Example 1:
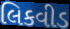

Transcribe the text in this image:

લિકવીડ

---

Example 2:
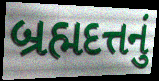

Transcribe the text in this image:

બ્રહ્મદત્તનું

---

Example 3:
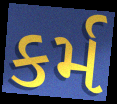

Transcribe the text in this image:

કર્મ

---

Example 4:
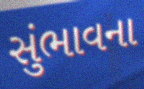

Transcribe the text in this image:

સુંભાવના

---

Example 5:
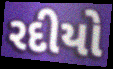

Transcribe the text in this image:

રદીયો